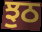
ਝੁਠ